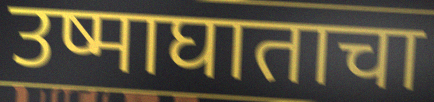
उष्माघाताचा